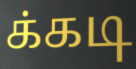
க்கடி